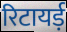
रिटायर्ड़